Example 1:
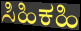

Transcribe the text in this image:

ಸಿಹಿಕಹಿ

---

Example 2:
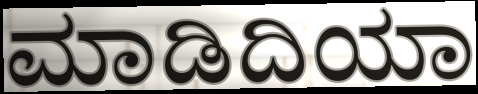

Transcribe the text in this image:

ಮಾಡಿದಿಯಾ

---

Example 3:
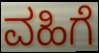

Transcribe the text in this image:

ವಹಿಗೆ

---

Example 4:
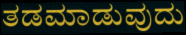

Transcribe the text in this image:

ತಡಮಾಡುವುದು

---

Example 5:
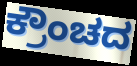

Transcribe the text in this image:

ಕ್ರೌಂಚದ